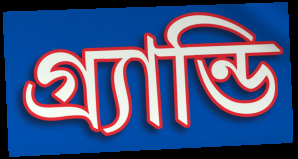
গ্র্যান্ডি